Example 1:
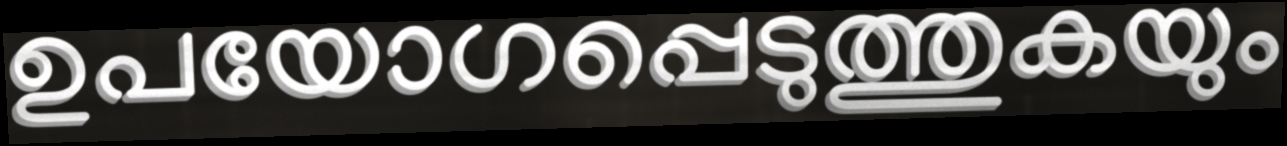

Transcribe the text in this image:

ഉപയോഗപ്പെടുത്തുകയും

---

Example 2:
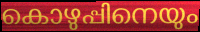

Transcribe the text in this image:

കൊഴുപ്പിനെയും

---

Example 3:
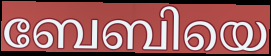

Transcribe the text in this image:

ബേബിയെ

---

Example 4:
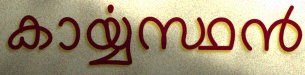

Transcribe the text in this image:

കാൎയ്യസ്ഥൻ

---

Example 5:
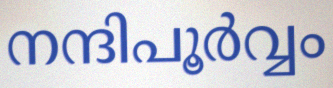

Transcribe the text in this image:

നന്ദിപൂർവ്വം